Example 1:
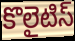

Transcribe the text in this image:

కొలైటిస్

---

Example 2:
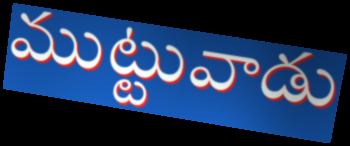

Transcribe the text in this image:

ముట్టువాడు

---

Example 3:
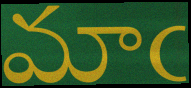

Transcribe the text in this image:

మాఁ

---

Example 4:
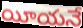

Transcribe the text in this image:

యీయనే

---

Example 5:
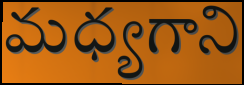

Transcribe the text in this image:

మధ్యగాని